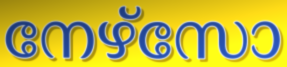
നേഴ്സോ